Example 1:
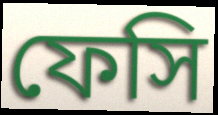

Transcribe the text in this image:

ফেসি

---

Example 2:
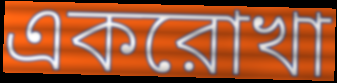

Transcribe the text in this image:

একরোখা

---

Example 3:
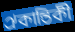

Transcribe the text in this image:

ঐকান্তিকী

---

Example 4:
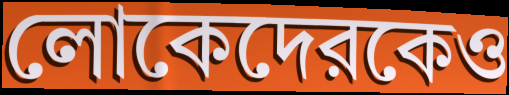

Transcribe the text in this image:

লোকেদেরকেও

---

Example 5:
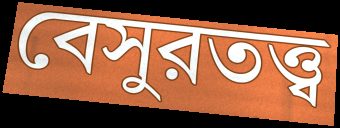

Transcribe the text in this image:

বেসুরতত্ত্ব